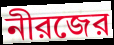
নীরজের